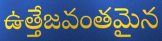
ఉత్తేజవంతమైన